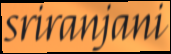
sriranjani